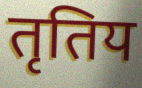
तृतिय